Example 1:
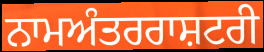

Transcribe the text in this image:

ਨਾਮਅੰਤਰਰਾਸ਼ਟਰੀ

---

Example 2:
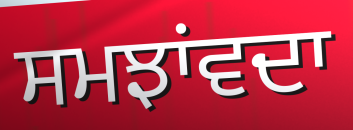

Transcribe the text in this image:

ਸਮਝਾਂਵਦਾ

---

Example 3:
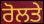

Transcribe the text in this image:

ਰੋਲਤੇ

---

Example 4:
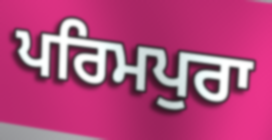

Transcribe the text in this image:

ਪਰਿਮਪੁਰਾ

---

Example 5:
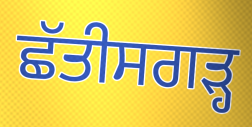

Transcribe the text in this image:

ਛੱਤੀਸਗਡ਼੍ਹ